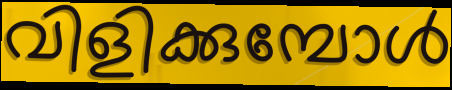
വിളിക്കുമ്പോൾ